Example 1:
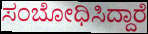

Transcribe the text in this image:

ಸಂಬೋಧಿಸಿದ್ದಾರೆ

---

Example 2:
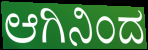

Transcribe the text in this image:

ಆಗಿನಿಂದ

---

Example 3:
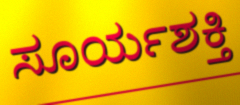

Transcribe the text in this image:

ಸೂರ್ಯಶಕ್ತಿ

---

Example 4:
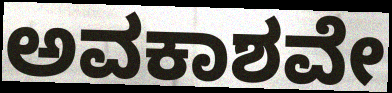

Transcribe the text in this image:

ಅವಕಾಶವೇ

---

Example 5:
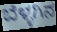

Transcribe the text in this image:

ಬೆಳ್ಳಗಿನ